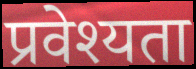
प्रवेश्यता